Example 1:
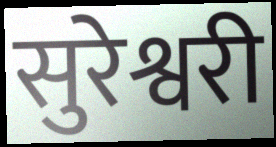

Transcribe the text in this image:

सुरेश्वरी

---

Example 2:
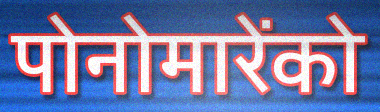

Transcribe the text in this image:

पोनोमारेंको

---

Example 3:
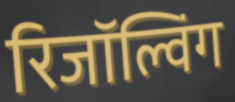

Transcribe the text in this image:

रिजॉल्विंग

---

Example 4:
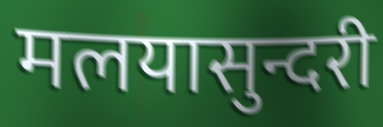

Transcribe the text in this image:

मलयासुन्दरी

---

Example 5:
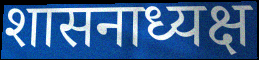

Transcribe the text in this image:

शासनाध्यक्ष